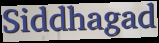
Siddhagad